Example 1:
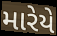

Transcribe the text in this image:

મારેયે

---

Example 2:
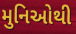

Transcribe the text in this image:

મુનિઓથી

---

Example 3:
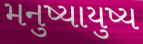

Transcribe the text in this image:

મનુષ્યાયુષ્ય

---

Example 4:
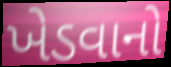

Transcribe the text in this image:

ખેડવાનો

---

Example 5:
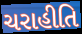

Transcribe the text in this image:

ચરાહીતિ